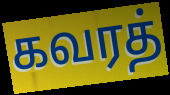
கவரத்